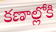
కణాల్లోకి